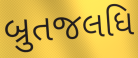
બ્રુતજલધિ